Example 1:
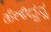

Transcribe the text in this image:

ಹೇಳಿದ್ದನ್ನ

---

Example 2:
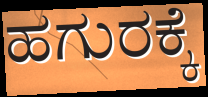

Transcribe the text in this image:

ಹಗುರಕ್ಕೆ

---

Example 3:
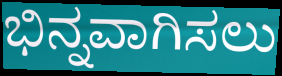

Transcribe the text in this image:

ಭಿನ್ನವಾಗಿಸಲು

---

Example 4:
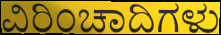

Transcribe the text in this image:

ವಿರಿಂಚಾದಿಗಳು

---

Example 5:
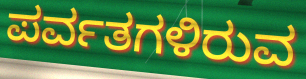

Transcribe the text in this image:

ಪರ್ವತಗಳಿರುವ